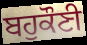
ਬਹੁਕੌਣੀ